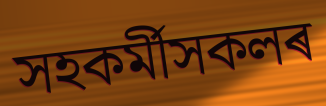
সহকৰ্মীসকলৰ